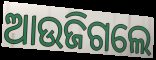
ଆଉଜିଗଲେ